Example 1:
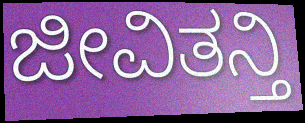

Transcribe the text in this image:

ಜೀವಿತನ್ತಿ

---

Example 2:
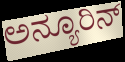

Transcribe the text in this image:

ಅನ್ಯೂರಿನ್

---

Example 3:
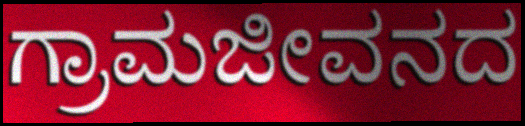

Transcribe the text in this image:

ಗ್ರಾಮಜೀವನದ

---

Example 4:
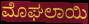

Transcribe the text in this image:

ಮೊಘಲಾಯಿ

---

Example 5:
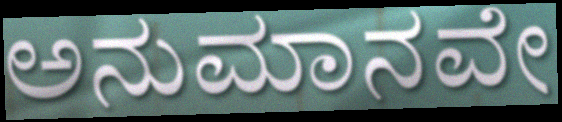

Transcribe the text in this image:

ಅನುಮಾನವೇ